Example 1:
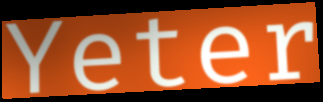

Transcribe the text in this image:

Yeter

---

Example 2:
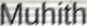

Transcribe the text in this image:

Muhith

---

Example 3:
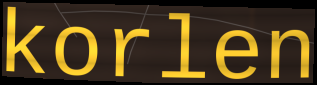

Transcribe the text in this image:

korlen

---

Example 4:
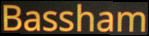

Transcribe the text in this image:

Bassham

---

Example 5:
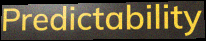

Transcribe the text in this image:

Predictability